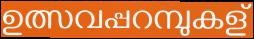
ഉത്സവപ്പറമ്പുകള്